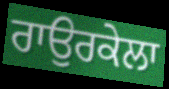
ਰਾਉਰਕੇਲਾ